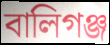
বালিগঞ্জ